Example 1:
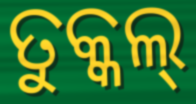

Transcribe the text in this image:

ତୁକ୍କଲ୍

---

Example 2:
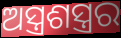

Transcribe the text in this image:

ଅସ୍ତ୍ରଶସ୍ତ୍ରର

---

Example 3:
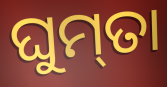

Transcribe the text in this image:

ଘୁମ୍‌ତା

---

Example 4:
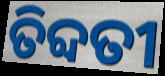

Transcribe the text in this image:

ତିବ୍ଦତୀ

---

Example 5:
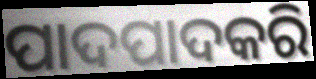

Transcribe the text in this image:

ପାଦପାଦକରି